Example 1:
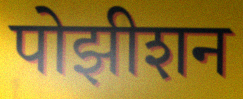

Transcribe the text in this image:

पोझीशन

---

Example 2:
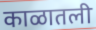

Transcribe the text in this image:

काळातली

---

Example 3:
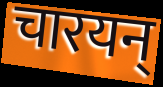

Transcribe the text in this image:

चारयन्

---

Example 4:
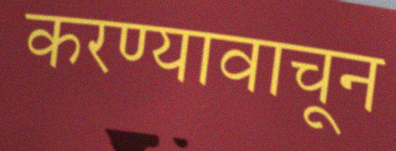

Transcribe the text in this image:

करण्यावाचून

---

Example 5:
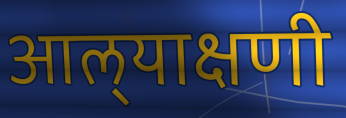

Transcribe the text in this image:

आल्याक्षणी